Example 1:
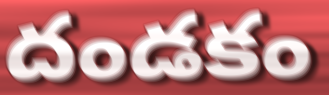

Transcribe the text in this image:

దండకం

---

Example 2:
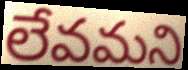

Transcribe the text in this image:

లేవమని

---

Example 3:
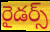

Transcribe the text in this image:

రైడర్స్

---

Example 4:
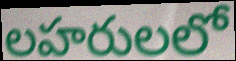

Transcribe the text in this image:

లహరులలో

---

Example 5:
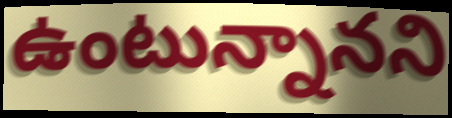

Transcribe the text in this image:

ఉంటున్నానని